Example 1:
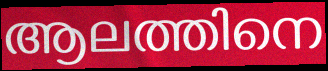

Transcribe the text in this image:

ആലത്തിനെ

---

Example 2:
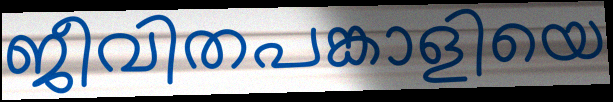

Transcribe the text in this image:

ജീവിതപങ്കാളിയെ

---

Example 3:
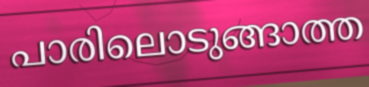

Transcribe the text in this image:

പാരിലൊടുങ്ങാത്ത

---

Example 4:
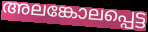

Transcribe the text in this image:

അലങ്കോലപ്പെട്ട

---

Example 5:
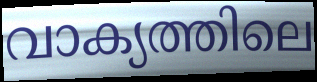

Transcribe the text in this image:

വാക്യത്തിലെ